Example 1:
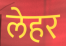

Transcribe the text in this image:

लेहर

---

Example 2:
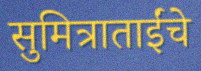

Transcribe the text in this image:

सुमित्राताईंचे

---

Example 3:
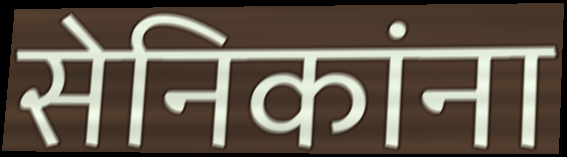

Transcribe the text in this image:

सेनिकांना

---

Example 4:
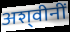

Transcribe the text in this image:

अश्वीनीं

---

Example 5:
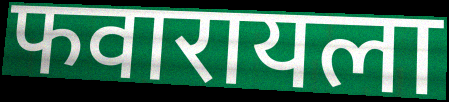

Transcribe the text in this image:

फवारायला